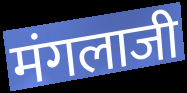
मंगलाजी